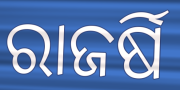
ରାଜର୍ଷି